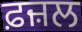
ਫ਼ਜ਼ਲ